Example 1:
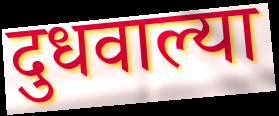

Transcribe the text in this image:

दुधवाल्या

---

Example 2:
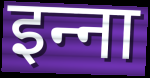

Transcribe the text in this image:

इन्ना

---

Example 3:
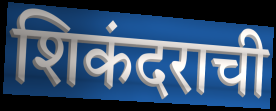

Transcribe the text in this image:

शिकंदराची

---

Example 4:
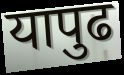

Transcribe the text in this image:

यापुढ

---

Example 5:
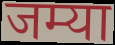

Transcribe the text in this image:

जम्या